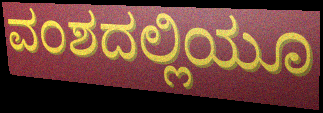
ವಂಶದಲ್ಲಿಯೂ